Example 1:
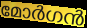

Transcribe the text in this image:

മോർഗൻ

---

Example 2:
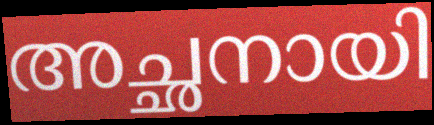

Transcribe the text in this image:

അച്ഛനായി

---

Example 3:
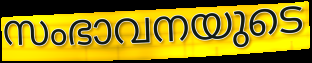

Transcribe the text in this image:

സംഭാവനയുടെ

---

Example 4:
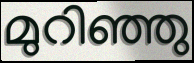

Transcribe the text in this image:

മുറിഞ്ഞു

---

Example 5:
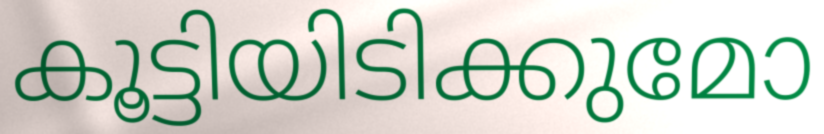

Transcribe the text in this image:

കൂട്ടിയിടിക്കുമോ